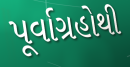
પૂર્વાગ્રહોથી